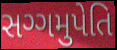
સગ્ગમુપેતિ